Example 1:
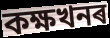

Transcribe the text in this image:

কক্ষখনৰ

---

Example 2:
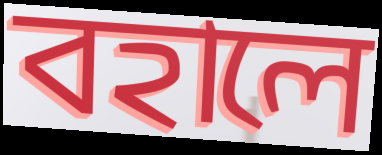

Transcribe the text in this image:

বহালে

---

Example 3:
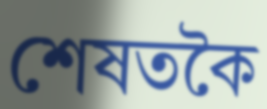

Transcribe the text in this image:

শেষতকৈ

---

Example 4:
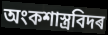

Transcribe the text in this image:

অংকশাস্ত্ৰবিদৰ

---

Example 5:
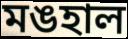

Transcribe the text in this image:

মঙহাল